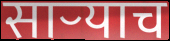
साऱ्याच